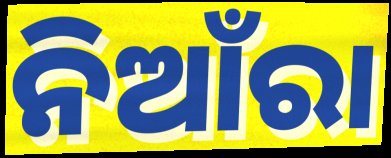
ନିଆଁରା